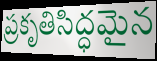
ప్రకృతిసిద్ధమైన